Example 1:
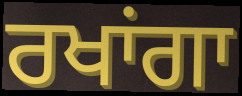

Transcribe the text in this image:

ਰਖਾਂਗਾ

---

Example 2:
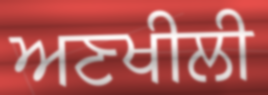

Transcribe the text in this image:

ਅਣਖੀਲੀ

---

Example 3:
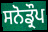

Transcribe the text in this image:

ਸਨੋਡ੍ਰੌਪ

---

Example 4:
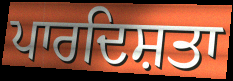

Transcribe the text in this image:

ਪਾਰਦਿਸ਼ਤਾ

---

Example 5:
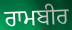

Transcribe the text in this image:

ਰਾਮਬੀਰ